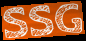
SSG